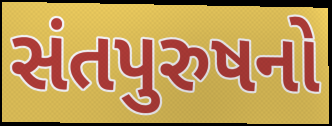
સંતપુરુષનો